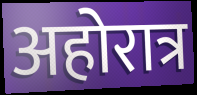
अहोरात्र